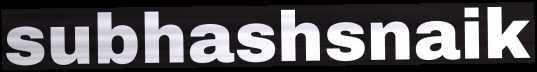
subhashsnaik